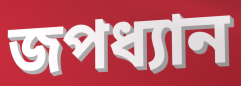
জপধ্যান